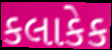
કલાકેક